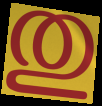
തു